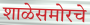
शाळेसमोरचे